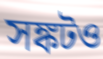
সঙ্কটও